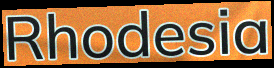
Rhodesia